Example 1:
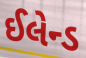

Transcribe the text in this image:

ઈલેન્ડ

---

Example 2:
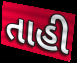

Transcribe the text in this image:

તાહી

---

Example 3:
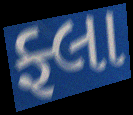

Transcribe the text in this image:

ફ્લા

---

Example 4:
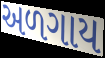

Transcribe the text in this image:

અળગાય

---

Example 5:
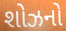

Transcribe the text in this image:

શોઝનો